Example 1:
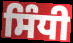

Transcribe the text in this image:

ਸਿੰਧੀ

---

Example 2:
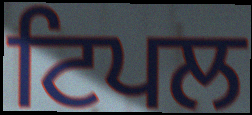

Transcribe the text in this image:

ਟਿਪਲ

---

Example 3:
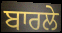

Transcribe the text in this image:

ਬਾਰਲੇ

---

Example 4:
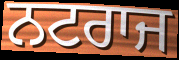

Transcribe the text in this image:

ਨਟਰਾਜ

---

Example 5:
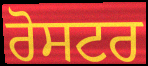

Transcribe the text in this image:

ਰੋਸਟਰ